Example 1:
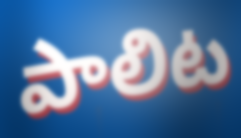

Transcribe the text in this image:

పాలిట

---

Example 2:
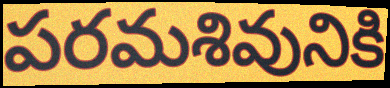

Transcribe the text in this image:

పరమశివునికి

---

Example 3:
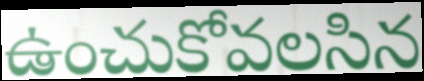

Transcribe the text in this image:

ఉంచుకోవలసిన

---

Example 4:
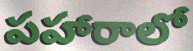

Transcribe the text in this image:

పహారాలో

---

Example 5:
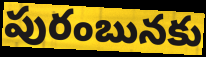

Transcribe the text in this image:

పురంబునకు